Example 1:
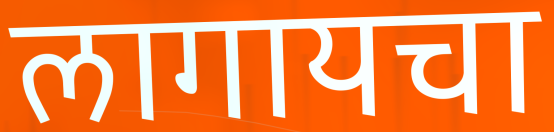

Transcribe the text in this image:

लागायचा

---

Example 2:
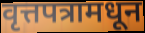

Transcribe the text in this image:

वृत्तपत्रामधून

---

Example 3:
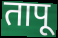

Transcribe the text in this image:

तापू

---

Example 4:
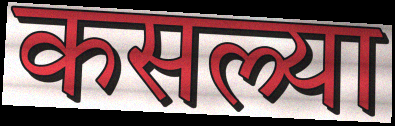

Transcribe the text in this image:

कसल्या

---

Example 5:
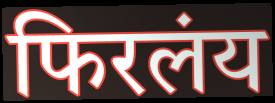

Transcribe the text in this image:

फिरलंय